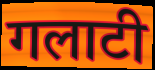
गलाटी